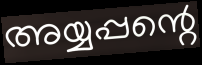
അയ്യപ്പന്റെ